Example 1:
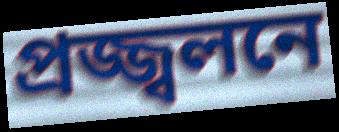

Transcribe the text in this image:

প্রজ্জ্বলনে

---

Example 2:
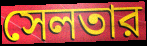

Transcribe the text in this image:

সেলতার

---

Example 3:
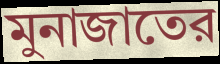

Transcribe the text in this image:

মুনাজাতের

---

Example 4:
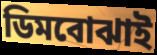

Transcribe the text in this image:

ডিমবোঝাই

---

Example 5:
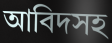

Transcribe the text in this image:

আবিদসহ